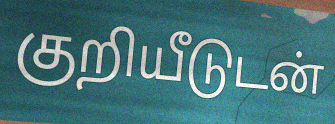
குறியீடுடன்